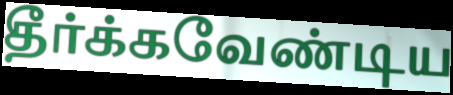
தீர்க்கவேண்டிய